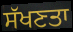
ਸੱਖਣਤਾ